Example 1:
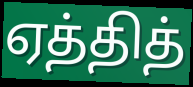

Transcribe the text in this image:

ஏத்தித்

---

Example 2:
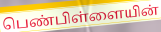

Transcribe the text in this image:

பெண்பிள்ளையின்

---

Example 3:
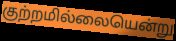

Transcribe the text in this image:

குற்றமில்லையென்று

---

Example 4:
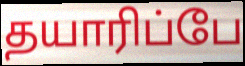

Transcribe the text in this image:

தயாரிப்பே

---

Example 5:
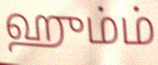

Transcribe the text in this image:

ஹும்ம்